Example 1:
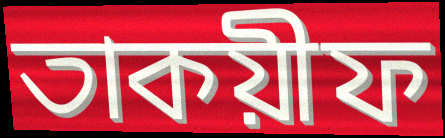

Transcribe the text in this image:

তাকয়ীফ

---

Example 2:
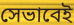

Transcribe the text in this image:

সেভাবেই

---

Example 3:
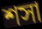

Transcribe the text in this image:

শসা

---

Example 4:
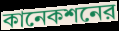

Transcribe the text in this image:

কানেকশনের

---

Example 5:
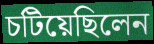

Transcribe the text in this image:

চটিয়েছিলেন